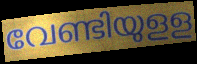
വേണ്ടിയുളള